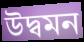
উদ্বমন